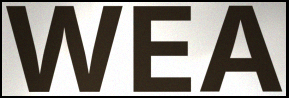
WEA